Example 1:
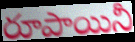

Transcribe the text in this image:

రూపాయినీ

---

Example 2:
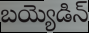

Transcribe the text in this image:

బయ్యెడిన్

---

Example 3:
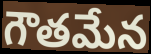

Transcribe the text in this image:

గౌతమేన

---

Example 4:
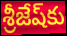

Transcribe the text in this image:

శ్రీజేష్‌కు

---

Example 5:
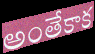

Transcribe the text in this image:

అంతేకాక